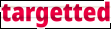
targetted